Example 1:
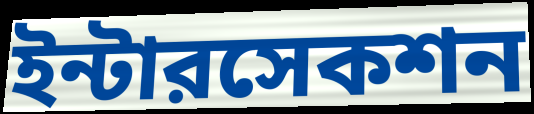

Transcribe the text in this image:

ইন্টারসেকশন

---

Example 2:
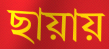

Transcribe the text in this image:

ছায়ায়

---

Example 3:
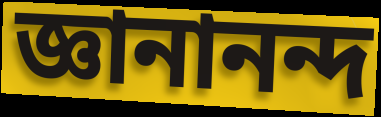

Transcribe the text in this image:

জ্ঞানানন্দ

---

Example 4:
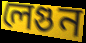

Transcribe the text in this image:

লেগুন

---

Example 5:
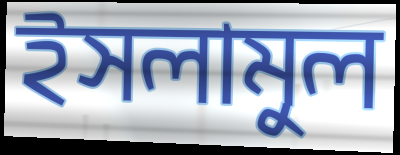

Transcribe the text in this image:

ইসলামুল